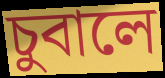
চুবালে